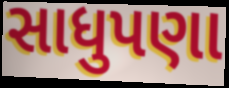
સાધુપણા